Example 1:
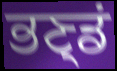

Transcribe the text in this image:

ਭਣ੍ਡਂ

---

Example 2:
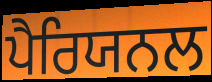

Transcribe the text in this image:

ਪੈਰਿਯਨਲ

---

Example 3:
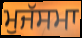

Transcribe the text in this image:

ਮੁਜੱਸਮਾ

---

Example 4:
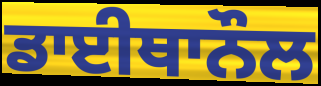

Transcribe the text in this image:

ਡਾਈਥਾਨੌਲ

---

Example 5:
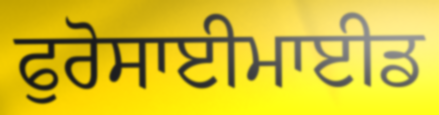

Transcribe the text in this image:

ਫੁਰੋਸਾਈਮਾਈਡ